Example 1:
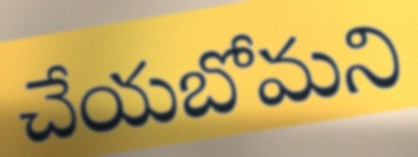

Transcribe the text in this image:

చేయబోమని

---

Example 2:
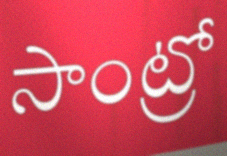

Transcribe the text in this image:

సాంట్రో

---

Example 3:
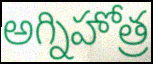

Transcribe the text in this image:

అగ్నిహోత్ర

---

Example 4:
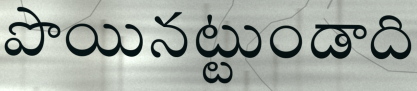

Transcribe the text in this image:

పొయినట్టుండాది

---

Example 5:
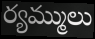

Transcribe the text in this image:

ర్యమ్ములు